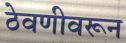
ठेवणीवरून